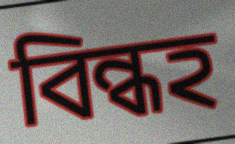
বিন্ধহ